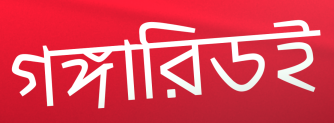
গঙ্গারিডই